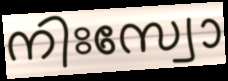
നിഃസ്വോ